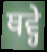
ਥਵ੍ਹੇ